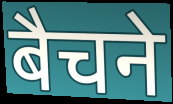
बैचने